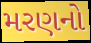
મરણનો